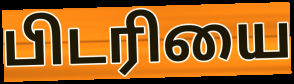
பிடரியை